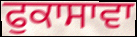
ਫੁਕਾਸਾਵਾ